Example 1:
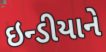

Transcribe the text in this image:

ઇન્ડીયાને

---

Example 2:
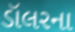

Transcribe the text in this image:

ડૉલરના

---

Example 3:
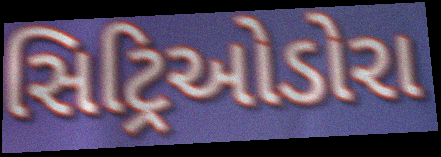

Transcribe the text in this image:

સિટ્રિઓડોરા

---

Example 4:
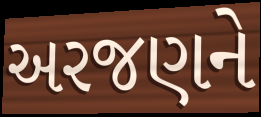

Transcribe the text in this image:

અરજણને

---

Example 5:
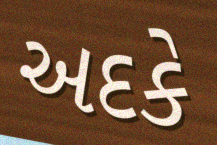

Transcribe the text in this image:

અદકે